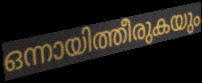
ഒന്നായിത്തീരുകയും